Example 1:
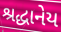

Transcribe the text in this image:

શ્રદ્ધાનેય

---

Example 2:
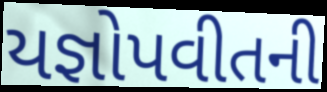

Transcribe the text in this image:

યજ્ઞોપવીતની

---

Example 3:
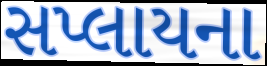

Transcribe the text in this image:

સપ્લાયના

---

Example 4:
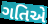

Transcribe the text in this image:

ગતિએ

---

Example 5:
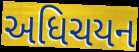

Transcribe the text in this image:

અધિચયન